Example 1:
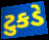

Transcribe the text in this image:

ટુકડે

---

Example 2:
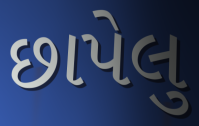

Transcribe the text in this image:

છાપેલુ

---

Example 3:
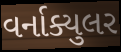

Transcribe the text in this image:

વર્નાક્યુલર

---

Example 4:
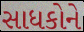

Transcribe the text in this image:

સાધકોને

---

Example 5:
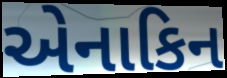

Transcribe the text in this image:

એનાકિન